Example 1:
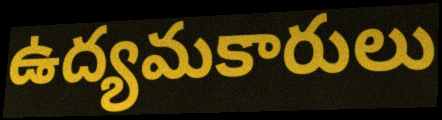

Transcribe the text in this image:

ఉద్యమకారులు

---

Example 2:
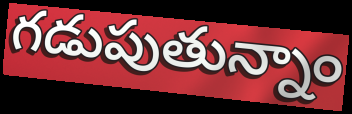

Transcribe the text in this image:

గడుపుతున్నాం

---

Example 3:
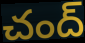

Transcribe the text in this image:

చంద్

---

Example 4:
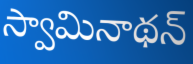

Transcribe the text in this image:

స్వామినాథన్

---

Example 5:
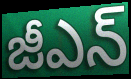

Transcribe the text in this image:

జీఎన్